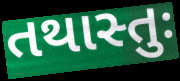
તથાસ્તુઃ